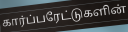
கார்ப்பரேட்டுகளின்